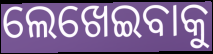
ଲେଖେଇବାକୁ